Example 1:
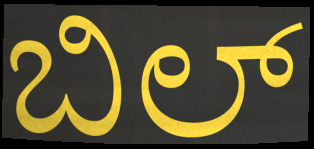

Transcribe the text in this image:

ಬಿಲ್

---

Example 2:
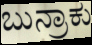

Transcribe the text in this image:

ಬುನ್ರಾಕು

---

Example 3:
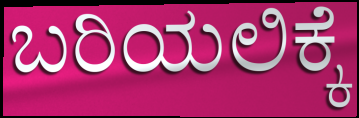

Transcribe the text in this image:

ಬರಿಯಲಿಕ್ಕೆ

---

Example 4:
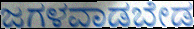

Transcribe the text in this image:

ಜಗಳವಾಡಬೇಡ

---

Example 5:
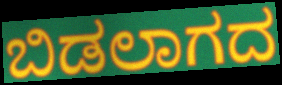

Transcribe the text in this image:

ಬಿಡಲಾಗದ